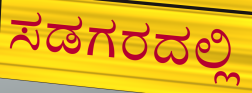
ಸಡಗರದಲ್ಲಿ